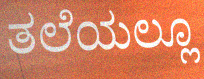
ತಲೆಯಲ್ಲೂ